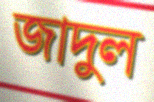
জাদুল